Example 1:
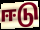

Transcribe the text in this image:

ஈடு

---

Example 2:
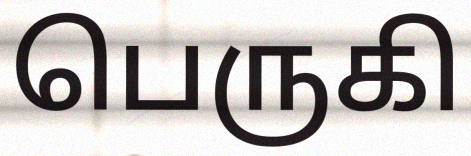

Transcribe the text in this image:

பெருகி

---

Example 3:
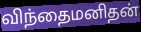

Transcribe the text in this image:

விந்தைமனிதன்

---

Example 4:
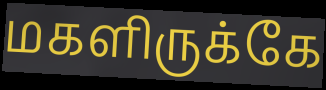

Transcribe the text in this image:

மகளிருக்கே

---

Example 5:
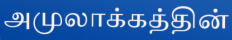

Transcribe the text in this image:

அமுலாக்கத்தின்